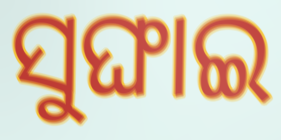
ସୁଙ୍ଘାଇ